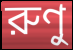
ৰুণু